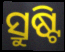
ସ୍ରୁଷ୍ଟି